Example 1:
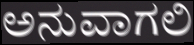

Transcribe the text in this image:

ಅನುವಾಗಲಿ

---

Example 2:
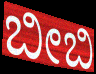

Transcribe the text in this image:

ಬೀಬಿ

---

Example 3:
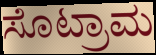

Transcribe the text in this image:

ಸೊಟ್ರಾಮ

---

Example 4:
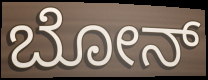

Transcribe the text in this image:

ಬೋನ್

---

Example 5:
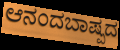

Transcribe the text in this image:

ಆನಂದಬಾಷ್ಪದ